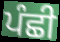
ਪੰਛੀ